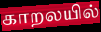
காறலயில்